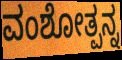
ವಂಶೋತ್ಪನ್ನ